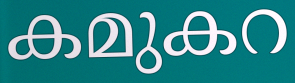
കമുകറ